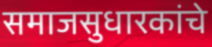
समाजसुधारकांचे